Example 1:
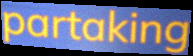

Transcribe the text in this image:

partaking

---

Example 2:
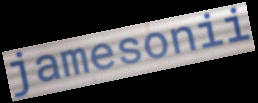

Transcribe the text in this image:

jamesonii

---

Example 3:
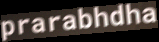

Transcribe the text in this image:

prarabhdha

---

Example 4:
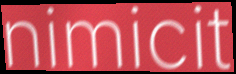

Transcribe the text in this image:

nimicit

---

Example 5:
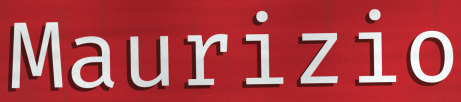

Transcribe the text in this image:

Maurizio